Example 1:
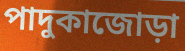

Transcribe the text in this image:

পাদুকাজোড়া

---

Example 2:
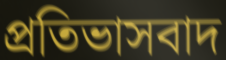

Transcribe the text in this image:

প্রতিভাসবাদ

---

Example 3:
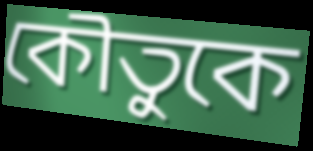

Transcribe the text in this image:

কৌতুকে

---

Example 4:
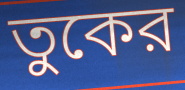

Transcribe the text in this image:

তুকের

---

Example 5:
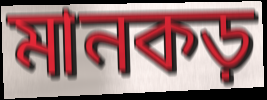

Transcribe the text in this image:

মানকড়